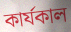
কার্যকাল